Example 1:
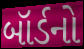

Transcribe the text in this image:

બૉર્ડનો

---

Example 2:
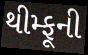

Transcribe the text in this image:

થીમ્ફૂની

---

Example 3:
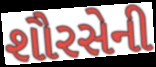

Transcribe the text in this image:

શૌરસેની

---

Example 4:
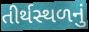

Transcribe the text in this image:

તીર્થસ્થળનું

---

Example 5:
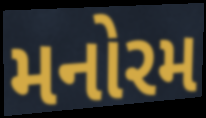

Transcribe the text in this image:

મનોરમ